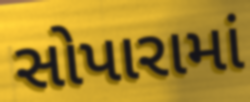
સોપારામાં